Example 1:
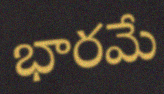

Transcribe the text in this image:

భారమే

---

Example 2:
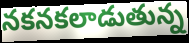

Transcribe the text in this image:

నకనకలాడుతున్న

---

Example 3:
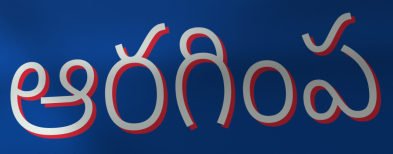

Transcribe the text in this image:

ఆరగింప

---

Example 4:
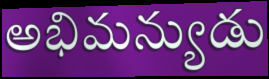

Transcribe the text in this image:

అభిమన్యుడు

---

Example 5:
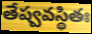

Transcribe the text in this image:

తేష్వవస్థితః